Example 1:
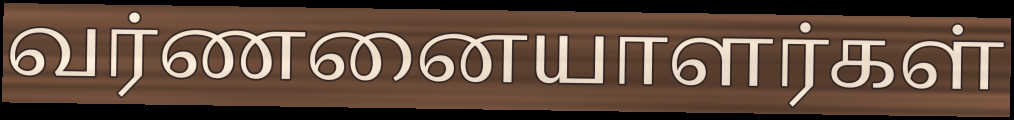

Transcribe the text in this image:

வர்ணனையாளர்கள்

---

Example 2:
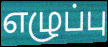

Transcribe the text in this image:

எழுப்பு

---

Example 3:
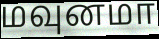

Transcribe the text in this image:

மவுனமா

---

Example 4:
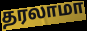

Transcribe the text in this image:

தரலாமா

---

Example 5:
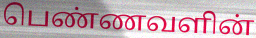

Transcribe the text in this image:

பெண்ணவளின்